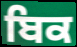
ਬਿਕ